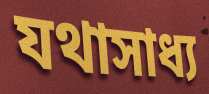
যথাসাধ্য